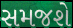
સમજશે